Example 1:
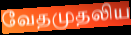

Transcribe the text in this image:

வேதமுதலிய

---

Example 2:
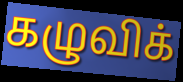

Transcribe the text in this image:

கழுவிக்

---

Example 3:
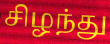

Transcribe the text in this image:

சிழந்து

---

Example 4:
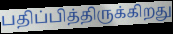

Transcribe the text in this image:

பதிப்பித்திருக்கிறது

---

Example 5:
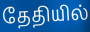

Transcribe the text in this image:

தேதியில்